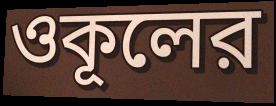
ওকূলের